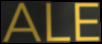
ALE